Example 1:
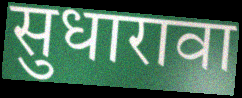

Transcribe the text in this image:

सुधारावा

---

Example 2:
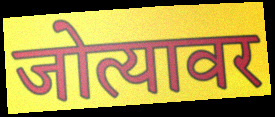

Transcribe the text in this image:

जोत्यावर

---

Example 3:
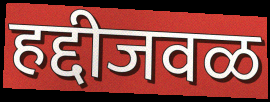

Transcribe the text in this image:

हद्दीजवळ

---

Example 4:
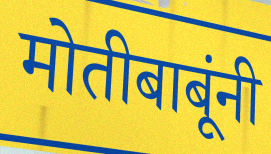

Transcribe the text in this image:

मोतीबाबूंनी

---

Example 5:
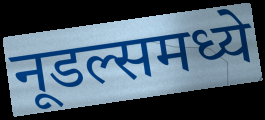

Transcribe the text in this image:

नूडल्समध्ये